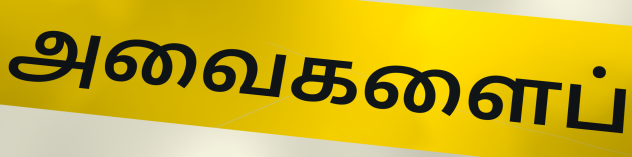
அவைகளைப்